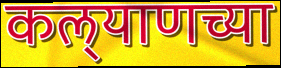
कल्याणच्या